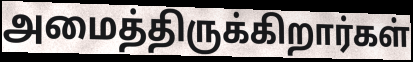
அமைத்திருக்கிறார்கள்